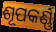
ଶୂପକର୍ଣ୍ଣ